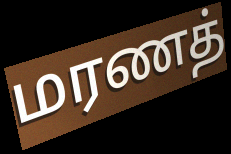
மரணத்